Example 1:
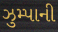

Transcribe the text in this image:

ઝુમ્પાની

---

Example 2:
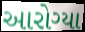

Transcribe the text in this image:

આરોગ્યા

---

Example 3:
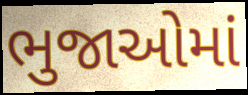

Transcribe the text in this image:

ભુજાઓમાં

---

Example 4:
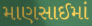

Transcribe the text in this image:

માણસાઈમાં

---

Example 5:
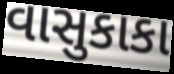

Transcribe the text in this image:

વાસુકાકા